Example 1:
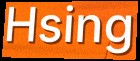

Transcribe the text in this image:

Hsing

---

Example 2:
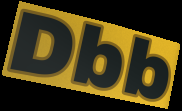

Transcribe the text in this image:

Dbb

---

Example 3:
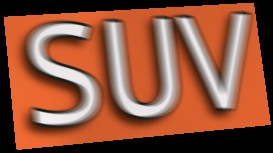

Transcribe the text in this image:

SUV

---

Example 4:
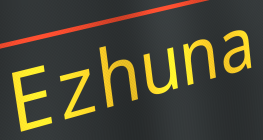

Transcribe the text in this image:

Ezhuna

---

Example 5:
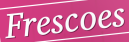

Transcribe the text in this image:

Frescoes